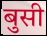
बुसी